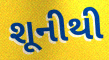
શૂનીથી